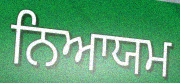
ਨਿਆਯਮ